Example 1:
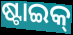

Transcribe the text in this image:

ଷ୍ଟାଇକ୍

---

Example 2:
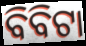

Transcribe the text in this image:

ବିବିଟା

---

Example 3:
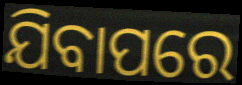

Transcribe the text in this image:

ଯିବାପରେ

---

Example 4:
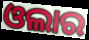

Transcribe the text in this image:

ଓଲାର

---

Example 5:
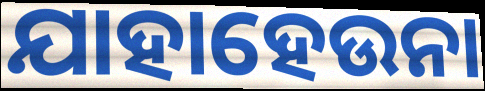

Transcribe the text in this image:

ଯାହାହେଉନା